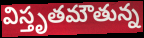
విస్తృతమౌతున్న